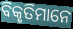
ବିକୃତିମାନେ